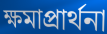
ক্ষমাপ্রার্থনা